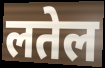
लतेल